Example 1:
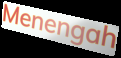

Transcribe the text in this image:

Menengah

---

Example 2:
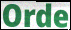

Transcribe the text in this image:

Orde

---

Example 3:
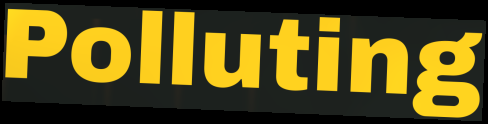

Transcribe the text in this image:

Polluting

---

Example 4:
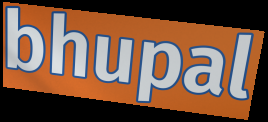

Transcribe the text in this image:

bhupal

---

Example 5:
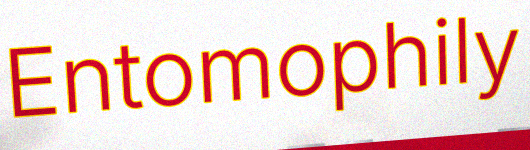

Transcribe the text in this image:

Entomophily